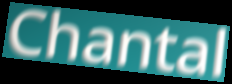
Chantal